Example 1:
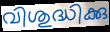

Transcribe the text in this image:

വിശുദ്ധിക്കു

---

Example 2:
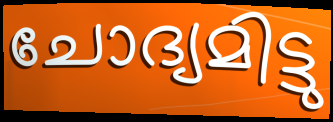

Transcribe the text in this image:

ചോദ്യമിട്ടു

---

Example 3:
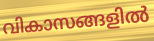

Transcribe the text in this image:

വികാസങ്ങളിൽ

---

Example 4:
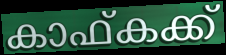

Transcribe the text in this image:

കാഫ്കക്ക്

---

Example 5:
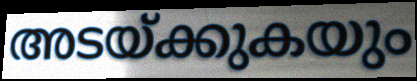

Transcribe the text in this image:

അടയ്ക്കുകയും